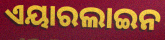
ଏୟାରଲାଇନ